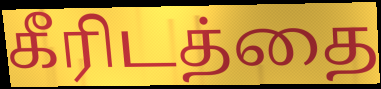
கீரிடத்தை